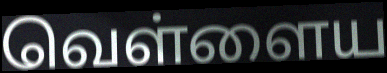
வெள்ளைய